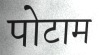
पोटाम